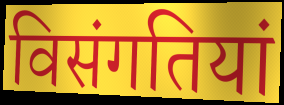
विसंगतियां